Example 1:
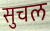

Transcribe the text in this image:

सुचल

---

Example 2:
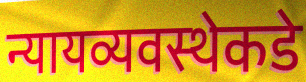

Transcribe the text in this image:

न्यायव्यवस्थेकडे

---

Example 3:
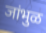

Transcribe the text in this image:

जांभुळ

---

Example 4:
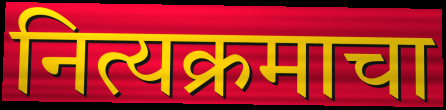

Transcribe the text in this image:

नित्यक्रमाचा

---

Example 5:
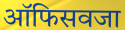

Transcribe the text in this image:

ऑफिसवजा